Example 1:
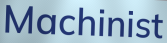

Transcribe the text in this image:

Machinist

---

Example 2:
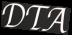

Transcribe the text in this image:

DTA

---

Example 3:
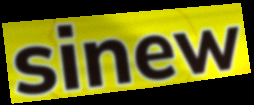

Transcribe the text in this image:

sinew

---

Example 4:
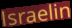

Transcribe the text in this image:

Israelin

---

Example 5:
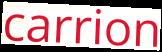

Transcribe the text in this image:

carrion